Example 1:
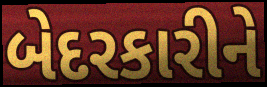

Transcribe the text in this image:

બેદરકારીને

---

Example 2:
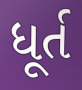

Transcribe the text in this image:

ધૂર્ત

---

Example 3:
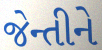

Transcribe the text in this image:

જેન્તીને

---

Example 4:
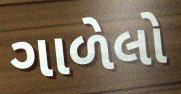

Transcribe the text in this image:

ગાળેલો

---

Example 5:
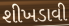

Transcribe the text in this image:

શીખડાવી